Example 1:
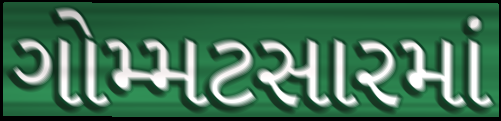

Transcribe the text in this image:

ગોમ્મટસારમાં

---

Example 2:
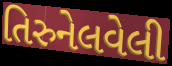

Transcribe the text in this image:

તિરુનેલવેલી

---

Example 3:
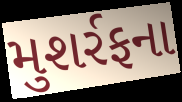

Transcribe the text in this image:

મુશર્રફના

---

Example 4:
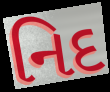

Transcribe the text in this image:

નિદ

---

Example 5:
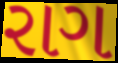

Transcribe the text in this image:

રાગ